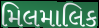
મિલમાલિક